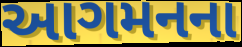
આગમનના